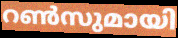
റൺസുമായി